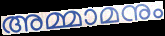
അമ്മാമനും